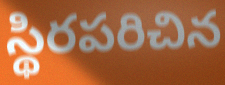
స్థిరపరిచిన